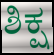
ಶಿಕ್ಷ